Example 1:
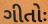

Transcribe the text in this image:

ગીતોઃ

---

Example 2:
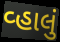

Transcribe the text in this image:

વ્હાલું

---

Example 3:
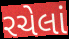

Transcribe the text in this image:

રચેલાં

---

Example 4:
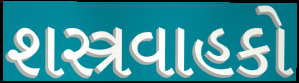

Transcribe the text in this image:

શસ્ત્રવાહકો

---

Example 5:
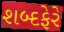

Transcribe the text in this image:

શબ્દફેરે